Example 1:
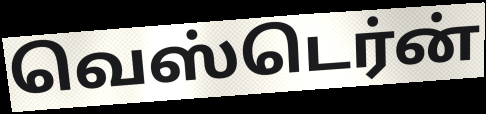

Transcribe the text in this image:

வெஸ்டெர்ன்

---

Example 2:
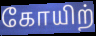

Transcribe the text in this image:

கோயிற்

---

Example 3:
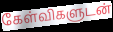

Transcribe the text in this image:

கேள்விகளுடன்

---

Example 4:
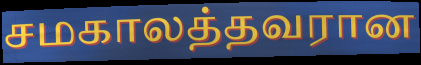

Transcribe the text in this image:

சமகாலத்தவரான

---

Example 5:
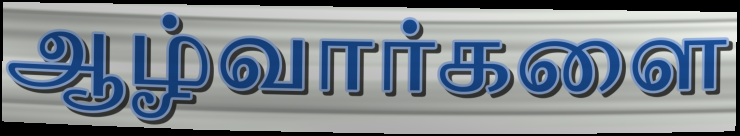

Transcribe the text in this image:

ஆழ்வார்களை